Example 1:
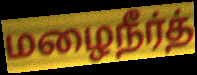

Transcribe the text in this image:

மழைநீர்த்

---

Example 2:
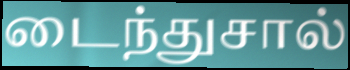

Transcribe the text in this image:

டைந்துசால்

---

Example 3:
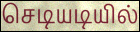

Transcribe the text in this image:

செடியடியில்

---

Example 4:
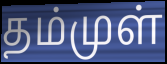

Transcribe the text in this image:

தம்முள்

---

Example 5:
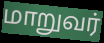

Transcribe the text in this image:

மாறுவர்